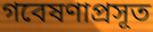
গবেষণাপ্রসূত